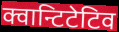
क्वान्टिटेटिव